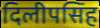
दिलीपसिंह